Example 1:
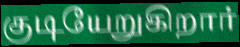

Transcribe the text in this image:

குடியேறுகிறார்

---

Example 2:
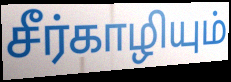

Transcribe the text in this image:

சீர்காழியும்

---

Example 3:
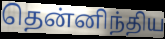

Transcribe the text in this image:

தென்னிந்திய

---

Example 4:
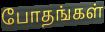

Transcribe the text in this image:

போதங்கள்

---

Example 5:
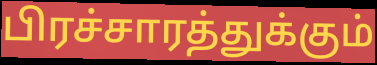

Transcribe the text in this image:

பிரச்சாரத்துக்கும்